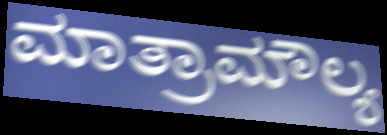
ಮಾತ್ರಾಮೌಲ್ಯ